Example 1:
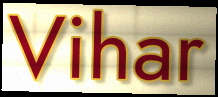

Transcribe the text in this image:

Vihar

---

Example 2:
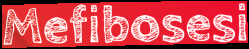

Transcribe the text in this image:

Mefibosesi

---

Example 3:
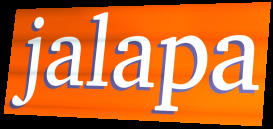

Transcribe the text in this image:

jalapa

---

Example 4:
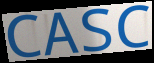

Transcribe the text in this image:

CASC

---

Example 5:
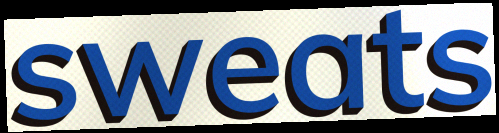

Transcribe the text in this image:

sweats